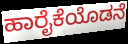
ಹಾರೈಕೆಯೊಡನೆ